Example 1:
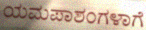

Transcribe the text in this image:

ಯಮಪಾಶಂಗಳಾಗೆ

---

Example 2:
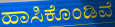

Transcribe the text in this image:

ಹಾಸಿಕೊಂಡಿವೆ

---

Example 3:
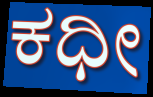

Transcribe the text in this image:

ಕಧೀ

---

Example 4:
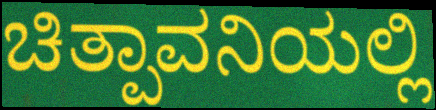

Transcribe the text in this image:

ಚಿತ್ಪಾವನಿಯಲ್ಲಿ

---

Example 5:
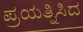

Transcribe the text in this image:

ಪ್ರಯತ್ನಿಸಿದ